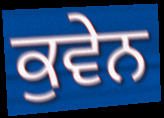
ਕੁਵੇਨ